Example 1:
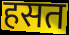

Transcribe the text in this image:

हसत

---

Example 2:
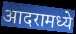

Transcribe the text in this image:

आदरामध्ये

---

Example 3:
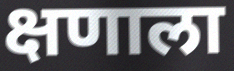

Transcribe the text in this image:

क्षणाला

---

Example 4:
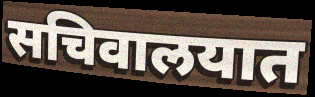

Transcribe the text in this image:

सचिवालयात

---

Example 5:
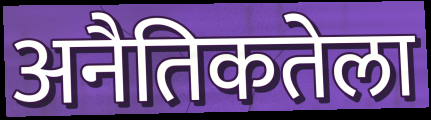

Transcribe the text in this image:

अनैतिकतेला